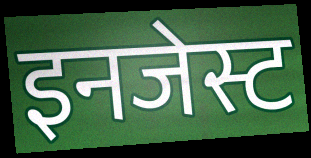
इनजेस्ट